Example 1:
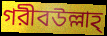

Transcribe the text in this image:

গরীবউল্লাহ্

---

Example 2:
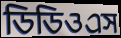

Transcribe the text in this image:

ডিডিওএস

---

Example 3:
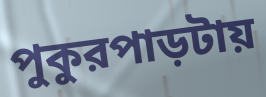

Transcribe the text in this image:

পুকুরপাড়টায়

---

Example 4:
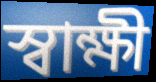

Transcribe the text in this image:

স্বাক্ষী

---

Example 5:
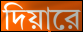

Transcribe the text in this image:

দিয়ারে